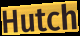
Hutch